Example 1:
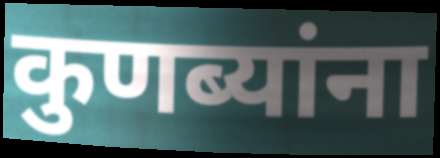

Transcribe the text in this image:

कुणब्यांना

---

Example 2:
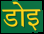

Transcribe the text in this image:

डोइ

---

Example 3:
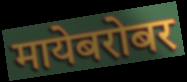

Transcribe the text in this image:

मायेबरोबर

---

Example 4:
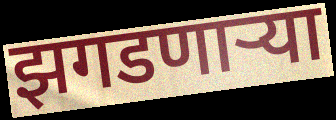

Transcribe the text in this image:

झगडणाऱ्या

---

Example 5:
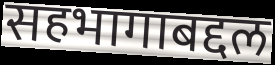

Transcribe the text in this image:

सहभागाबद्दल